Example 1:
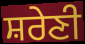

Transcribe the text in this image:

ਸ਼ਰੇਣੀ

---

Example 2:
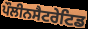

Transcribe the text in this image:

ਪੌਲੀਨਸੈਟਰੇਟਿਡ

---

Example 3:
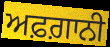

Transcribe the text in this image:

ਅਫ਼ਗ਼ਾਨੀ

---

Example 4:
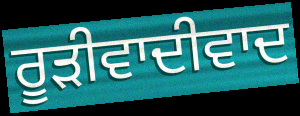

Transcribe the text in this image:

ਰੂੜੀਵਾਦੀਵਾਦ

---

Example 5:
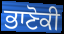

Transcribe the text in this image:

ਭਾਣੋਕੀ